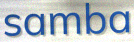
samba